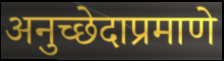
अनुच्छेदाप्रमाणे